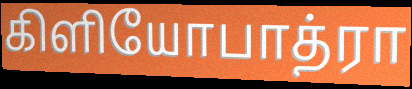
கிளியோபாத்ரா